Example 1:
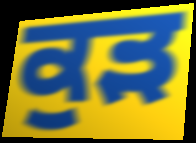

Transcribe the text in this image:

ਕੁੜ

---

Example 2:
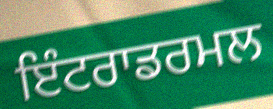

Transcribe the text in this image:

ਇੰਟਰਾਡਰਮਲ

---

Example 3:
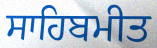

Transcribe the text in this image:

ਸਾਹਿਬਮੀਤ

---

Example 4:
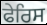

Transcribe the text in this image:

ਫੇਰਿਸ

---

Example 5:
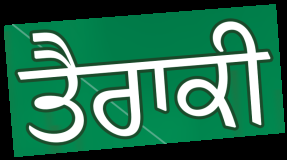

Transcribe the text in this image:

ਤੈਰਾਕੀ